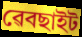
ৱেবছাইট